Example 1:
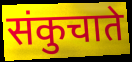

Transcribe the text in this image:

संकुचाते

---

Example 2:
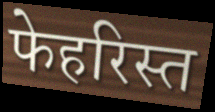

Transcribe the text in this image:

फेहरिस्त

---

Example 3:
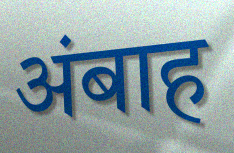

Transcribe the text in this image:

अंबाह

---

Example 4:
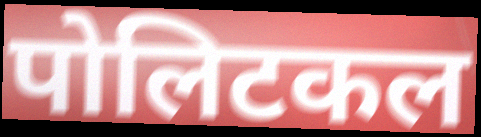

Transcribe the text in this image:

पोलिटकल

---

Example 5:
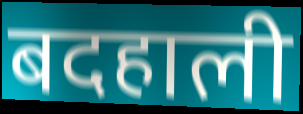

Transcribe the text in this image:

बदहाली